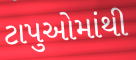
ટાપુઓમાંથી